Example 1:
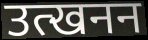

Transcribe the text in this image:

उत्‍खनन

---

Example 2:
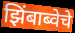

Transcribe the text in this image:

झिंबाब्वेचे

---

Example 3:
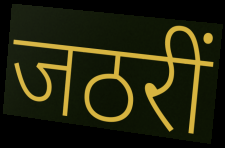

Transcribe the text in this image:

जठरीं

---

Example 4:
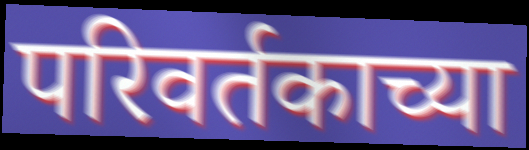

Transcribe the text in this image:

परिवर्तकाच्या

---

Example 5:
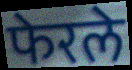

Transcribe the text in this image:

फेरले